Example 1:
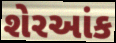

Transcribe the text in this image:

શેરઆંક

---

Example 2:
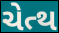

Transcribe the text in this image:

ચેત્થ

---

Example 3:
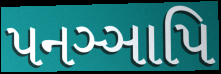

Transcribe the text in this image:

પનઞ્ઞાપિ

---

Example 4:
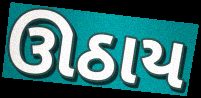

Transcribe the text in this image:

ઊઠાય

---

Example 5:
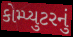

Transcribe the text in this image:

કોમ્પ્યુટરનું